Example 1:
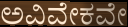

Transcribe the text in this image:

ಅವಿವೇಕವೇ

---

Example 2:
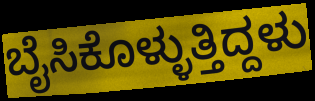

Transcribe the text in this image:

ಬೈಸಿಕೊಳ್ಳುತ್ತಿದ್ದಳು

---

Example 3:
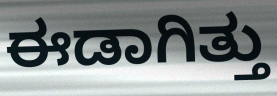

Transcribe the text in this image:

ಈಡಾಗಿತ್ತು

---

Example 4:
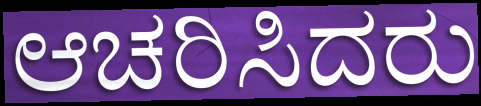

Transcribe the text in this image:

ಆಚರಿಸಿದರು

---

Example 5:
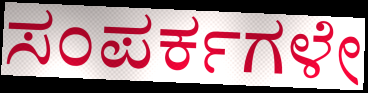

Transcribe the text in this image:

ಸಂಪರ್ಕಗಳೇ